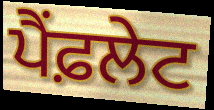
ਪੈਂਫ਼ਲੇਟ